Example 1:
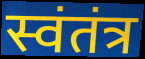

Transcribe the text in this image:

स्वंतंत्र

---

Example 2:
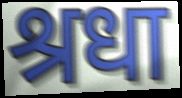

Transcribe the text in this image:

श्रधा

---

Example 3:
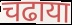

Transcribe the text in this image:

चढाया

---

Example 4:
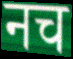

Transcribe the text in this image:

नच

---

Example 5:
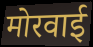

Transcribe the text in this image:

मोरवाई